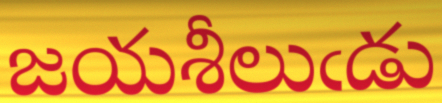
జయశీలుఁడు